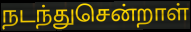
நடந்துசென்றாள்